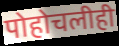
पोहोचलीही